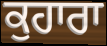
ਕੁਹਾਰਾ